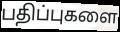
பதிப்புகளை